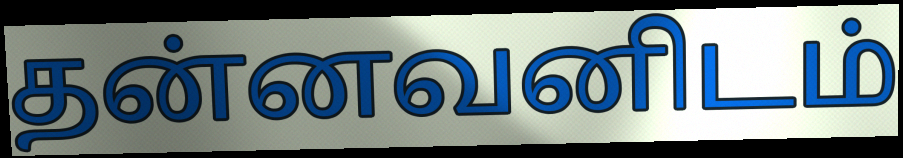
தன்னவனிடம்